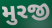
મુરજી